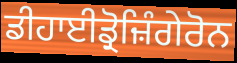
ਡੀਹਾਈਡ੍ਰੋਜ਼ਿੰਗੇਰੋਨ